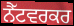
ਨੈੱਟਵਰਕਰ